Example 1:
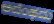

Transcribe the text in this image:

ಅದೆಂಥದು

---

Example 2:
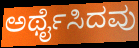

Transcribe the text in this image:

ಅರ್ಥೈಸಿದವು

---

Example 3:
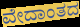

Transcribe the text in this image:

ವೇದಾಂತದ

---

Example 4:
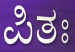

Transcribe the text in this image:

ಪಿತಃ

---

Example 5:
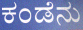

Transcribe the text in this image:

ಕಂಡೆನು